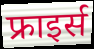
फ्राइर्स